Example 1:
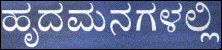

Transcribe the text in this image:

ಹೃದಮನಗಳಲ್ಲಿ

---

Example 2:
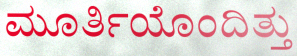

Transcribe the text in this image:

ಮೂರ್ತಿಯೊಂದಿತ್ತು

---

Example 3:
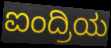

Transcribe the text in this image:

ಐಂದ್ರಿಯ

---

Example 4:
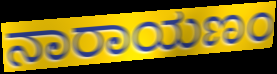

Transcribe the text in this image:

ನಾರಾಯಣಂ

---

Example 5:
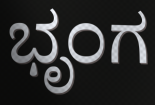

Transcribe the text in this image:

ಭೃಂಗ